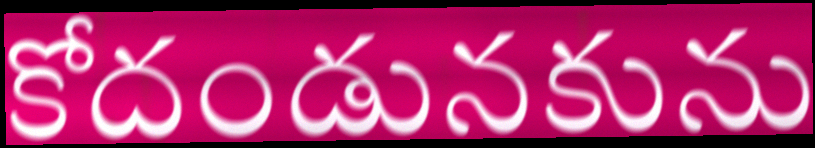
కోదండునకును